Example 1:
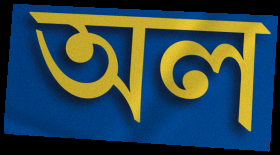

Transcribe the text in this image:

অল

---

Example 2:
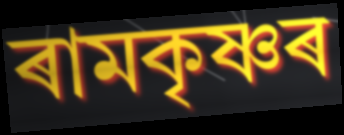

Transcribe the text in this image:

ৰামকৃষ্ণৰ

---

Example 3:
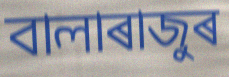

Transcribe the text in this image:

বালাৰাজুৰ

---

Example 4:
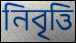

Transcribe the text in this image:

নিবৃত্তি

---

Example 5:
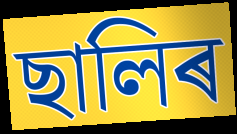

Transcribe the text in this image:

ছালিৰ